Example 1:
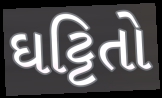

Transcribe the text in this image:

ઘટ્ટિતો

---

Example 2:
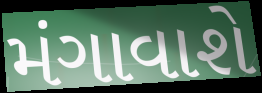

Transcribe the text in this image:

મંગાવાશે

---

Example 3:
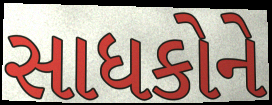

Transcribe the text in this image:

સાધકોને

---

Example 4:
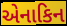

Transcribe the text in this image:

એનાકિન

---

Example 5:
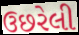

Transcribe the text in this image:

ઉછરેલી